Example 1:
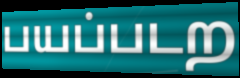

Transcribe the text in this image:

பயப்படற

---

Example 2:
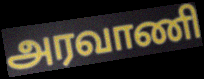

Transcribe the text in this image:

அரவாணி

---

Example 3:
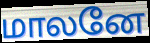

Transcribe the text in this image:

மாலனே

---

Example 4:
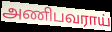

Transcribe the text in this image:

அணிபவராய்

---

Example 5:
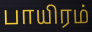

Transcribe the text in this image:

பாயிரம்